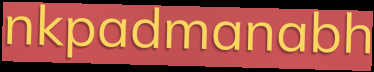
nkpadmanabh